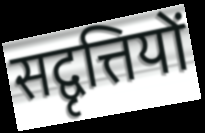
सद्वृत्तियों